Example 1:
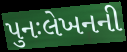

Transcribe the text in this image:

પુનઃલેખનની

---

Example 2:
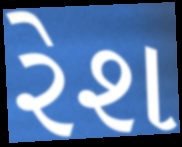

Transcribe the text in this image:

રેશ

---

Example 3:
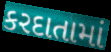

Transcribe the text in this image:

કરદાતામાં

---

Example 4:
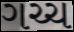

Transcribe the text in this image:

ગચ્ચ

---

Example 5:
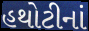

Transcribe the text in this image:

હથોટીનાં